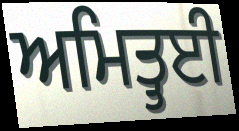
ਅਮਿਤ੍ਤਈ